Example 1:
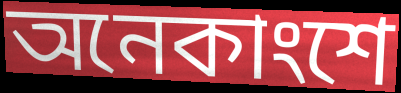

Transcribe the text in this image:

অনেকাংশে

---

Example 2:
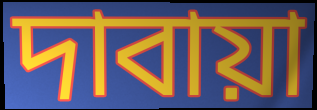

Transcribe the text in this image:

দাবায়া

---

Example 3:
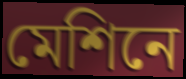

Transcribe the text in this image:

মেশিনে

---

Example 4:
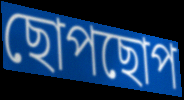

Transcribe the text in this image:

ছোপছোপ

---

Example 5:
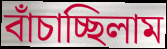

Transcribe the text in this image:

বাঁচাচ্ছিলাম